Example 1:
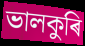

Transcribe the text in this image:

ভালকুৰি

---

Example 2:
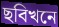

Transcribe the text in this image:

ছবিখনে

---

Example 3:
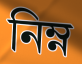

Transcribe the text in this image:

নিম্ন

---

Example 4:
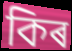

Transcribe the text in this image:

কিৰ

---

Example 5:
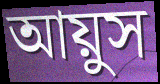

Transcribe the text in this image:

আয়ুস